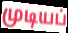
முடியப்